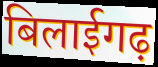
बिलाईगढ़